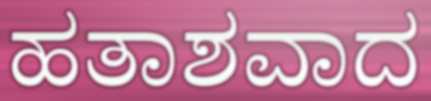
ಹತಾಶವಾದ